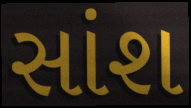
સાંશ